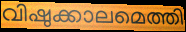
വിഷുക്കാലമെത്തി